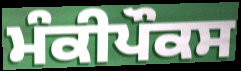
ਮੰਕੀਪੌਕਸ